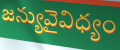
జన్యువైవిధ్యం